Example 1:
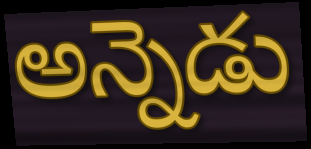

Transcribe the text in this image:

అన్నెడు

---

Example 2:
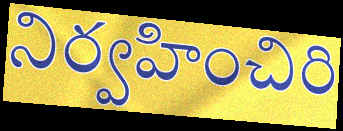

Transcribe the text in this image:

నిర్వహించిరి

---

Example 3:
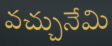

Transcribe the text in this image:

వచ్చునేమి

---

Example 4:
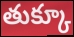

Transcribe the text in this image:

తుక్కూ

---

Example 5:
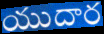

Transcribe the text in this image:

యుదార